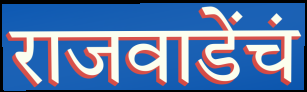
राजवाडेंचं